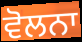
ਵੋਲਨਾ